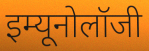
इम्यूनोलॉजी